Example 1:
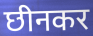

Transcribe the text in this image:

छीनकर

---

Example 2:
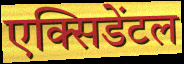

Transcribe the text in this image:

एक्सिडेंटल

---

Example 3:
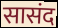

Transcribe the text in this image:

सासंद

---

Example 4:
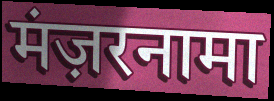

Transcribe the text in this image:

मंज़रनामा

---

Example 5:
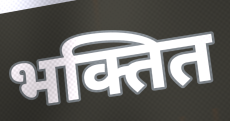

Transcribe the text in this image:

भक्तित